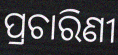
ପ୍ରଚାରିଣୀ